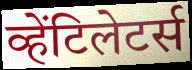
व्हेंटिलेटर्स